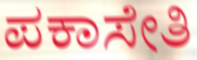
ಪಕಾಸೇತಿ